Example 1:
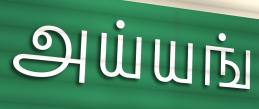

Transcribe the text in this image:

அய்யங்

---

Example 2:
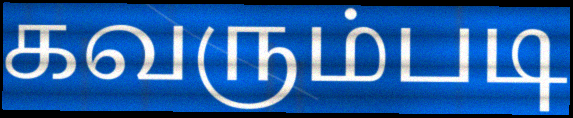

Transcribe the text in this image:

கவரும்படி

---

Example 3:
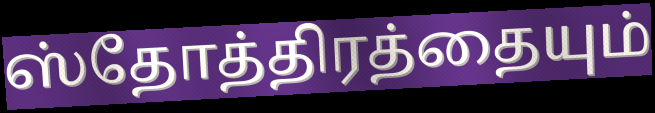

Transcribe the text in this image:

ஸ்தோத்திரத்தையும்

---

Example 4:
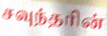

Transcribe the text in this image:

சவுந்தரின்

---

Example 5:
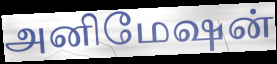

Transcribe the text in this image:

அனிமேஷன்